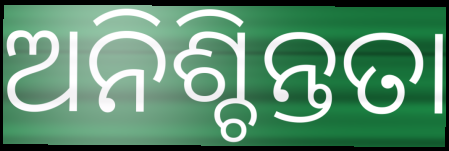
ଅନିଶ୍ଚିନ୍ତତା